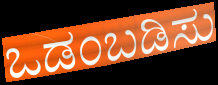
ಒಡಂಬಡಿಸು